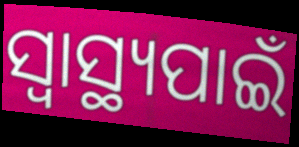
ସ୍ଵାସ୍ଥ୍ୟପାଇଁ